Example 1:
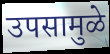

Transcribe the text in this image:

उपसामुळे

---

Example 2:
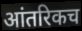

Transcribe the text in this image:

आंतरिकच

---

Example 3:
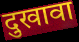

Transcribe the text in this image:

दुखावा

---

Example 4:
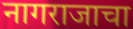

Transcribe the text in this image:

नागराजाचा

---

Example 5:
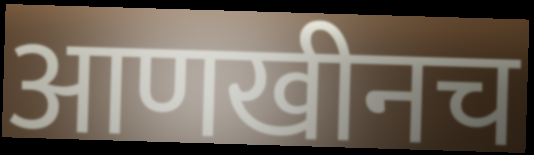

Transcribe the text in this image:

आणखीनच